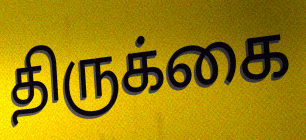
திருக்கை